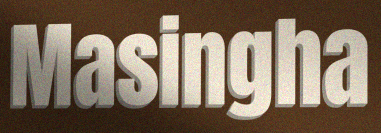
Masingha